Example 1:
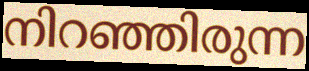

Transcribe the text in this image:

നിറഞ്ഞിരുന്ന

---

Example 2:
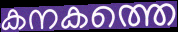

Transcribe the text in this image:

കനകത്തെ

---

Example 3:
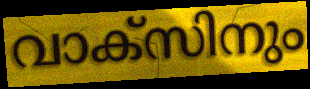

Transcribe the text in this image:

വാക്സിനും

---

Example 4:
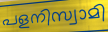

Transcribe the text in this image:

പളനിസ്വാമി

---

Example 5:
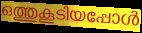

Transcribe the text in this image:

ഒത്തുകൂടിയപ്പോൾ